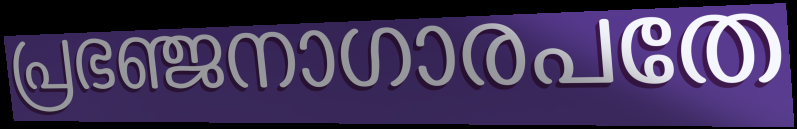
പ്രഭഞ്ജനാഗാരപതേ